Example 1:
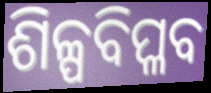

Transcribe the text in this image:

ଶିଳ୍ପବିପ୍ଳବ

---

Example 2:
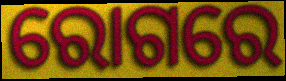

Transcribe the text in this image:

ରୋଗରେ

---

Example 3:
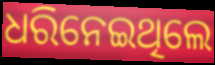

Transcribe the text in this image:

ଧରିନେଇଥିଲେ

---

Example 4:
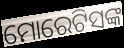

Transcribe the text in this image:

ମୋରେଟିସଙ୍କ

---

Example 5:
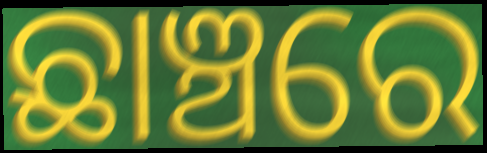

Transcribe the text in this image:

ଛାଞ୍ଚରେ